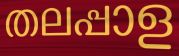
തലപ്പാള